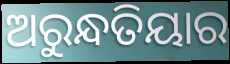
ଅରୁନ୍ଧତିୟାର